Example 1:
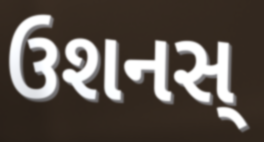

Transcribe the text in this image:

ઉશનસ્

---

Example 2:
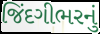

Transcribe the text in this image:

જિંદગીભરનું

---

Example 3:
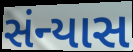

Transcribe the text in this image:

સંન્યાસ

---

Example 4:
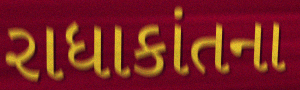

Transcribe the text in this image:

રાધાકાંતના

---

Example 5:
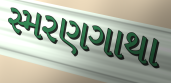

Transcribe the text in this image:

સ્મરણગાથા